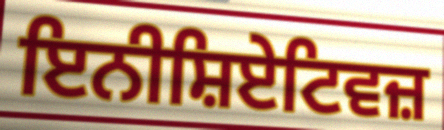
ਇਨੀਸ਼ਿਏਟਿਵਜ਼